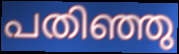
പതിഞ്ഞു